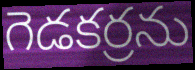
గెడకర్రను